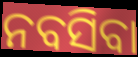
ନବସିବା